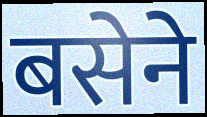
बसेने